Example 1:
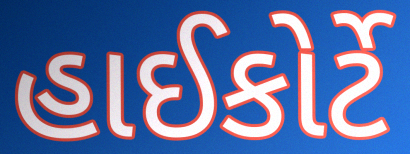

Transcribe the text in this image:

હાઈકોર્ટે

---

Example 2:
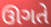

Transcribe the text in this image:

ઊગતે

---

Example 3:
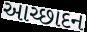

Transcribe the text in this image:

આચ્છાદન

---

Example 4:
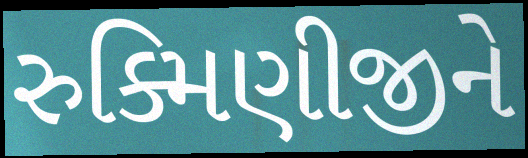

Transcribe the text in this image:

રુક્મિણીજીને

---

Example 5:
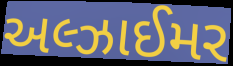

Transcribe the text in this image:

અલ્ઝાઈમર